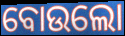
ବୋଉଲୋ